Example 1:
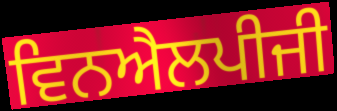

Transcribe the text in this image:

ਵਿਨਐਲਪੀਜੀ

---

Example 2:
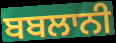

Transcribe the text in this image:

ਬਬਲਾਨੀ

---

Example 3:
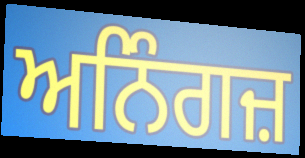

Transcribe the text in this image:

ਅਨਿੰਗਜ਼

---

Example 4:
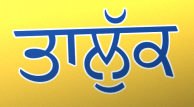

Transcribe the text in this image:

ਤਾਲੁੱਕ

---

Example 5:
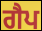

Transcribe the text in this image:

ਗੈਪ